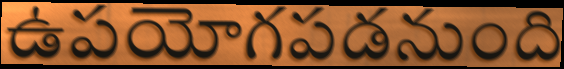
ఉపయోగపడనుంది